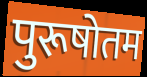
पुरूषोतम